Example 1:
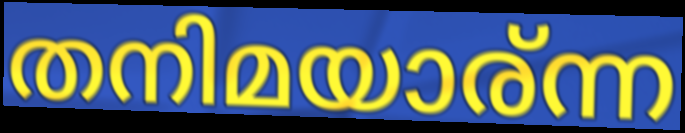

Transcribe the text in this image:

തനിമയാര്ന്ന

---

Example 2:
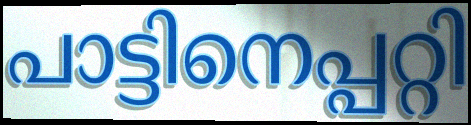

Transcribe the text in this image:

പാട്ടിനെപ്പറ്റി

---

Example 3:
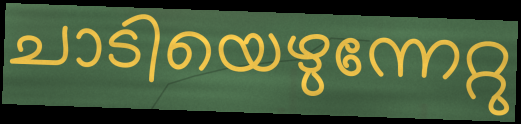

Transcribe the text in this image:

ചാടിയെഴുന്നേറ്റു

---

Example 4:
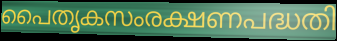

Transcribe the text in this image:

പൈതൃകസംരക്ഷണപദ്ധതി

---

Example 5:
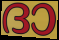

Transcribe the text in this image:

ദാ